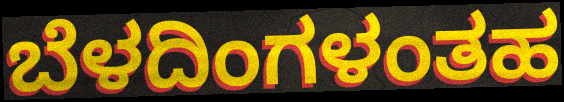
ಬೆಳದಿಂಗಳಂತಹ